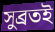
সুব্ৰতই